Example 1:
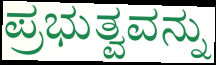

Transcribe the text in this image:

ಪ್ರಭುತ್ವವನ್ನು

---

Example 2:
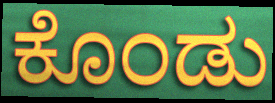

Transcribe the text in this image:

ಕೊಂಡು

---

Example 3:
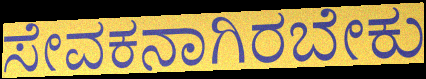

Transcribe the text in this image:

ಸೇವಕನಾಗಿರಬೇಕು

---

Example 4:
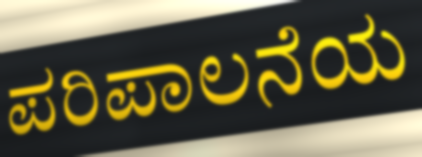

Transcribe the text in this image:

ಪರಿಪಾಲನೆಯ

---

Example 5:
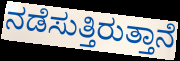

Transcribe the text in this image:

ನಡೆಸುತ್ತಿರುತ್ತಾನೆ